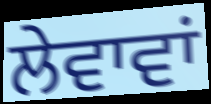
ਲੇਵਾਵਾਂ